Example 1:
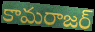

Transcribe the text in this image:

కామరాజర్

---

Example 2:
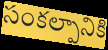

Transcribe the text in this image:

సంకల్పానికి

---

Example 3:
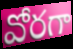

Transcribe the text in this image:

వోరగా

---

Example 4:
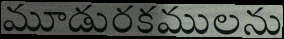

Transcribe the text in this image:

మూడురకములను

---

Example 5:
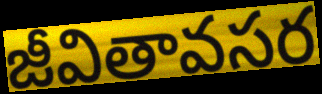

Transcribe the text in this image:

జీవితావసర